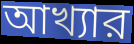
আখ্যার